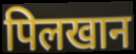
पिलखान